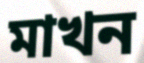
মাখন